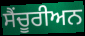
ਸੈਂਚੂਰੀਅਨ